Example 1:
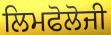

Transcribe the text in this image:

ਲਿਮਫੋਲੋਜੀ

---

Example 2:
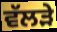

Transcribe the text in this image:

ਵੱਲੜੇ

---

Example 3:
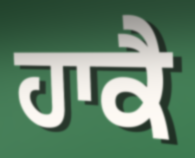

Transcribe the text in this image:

ਹਾਕੈ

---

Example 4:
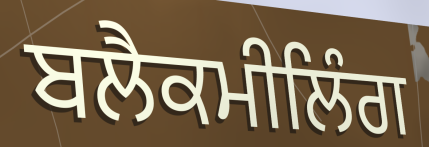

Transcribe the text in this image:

ਬਲੈਕਮੀਲਿੰਗ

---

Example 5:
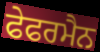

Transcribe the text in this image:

ਫੇਫਰਮੈਨ